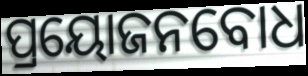
ପ୍ରୟୋଜନବୋଧ